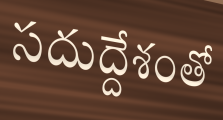
సదుద్దేశంతో